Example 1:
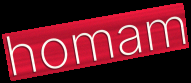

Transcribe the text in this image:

homam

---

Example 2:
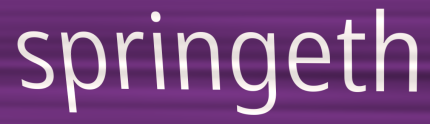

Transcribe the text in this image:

springeth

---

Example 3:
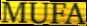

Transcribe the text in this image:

MUFA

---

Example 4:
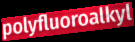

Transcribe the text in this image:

polyfluoroalkyl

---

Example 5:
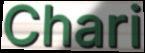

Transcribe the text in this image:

Chari